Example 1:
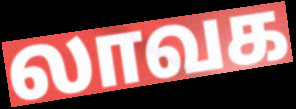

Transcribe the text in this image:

லாவக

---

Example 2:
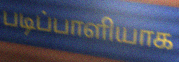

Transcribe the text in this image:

படிப்பாளியாக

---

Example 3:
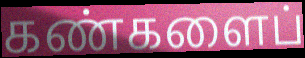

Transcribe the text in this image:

கண்களைப்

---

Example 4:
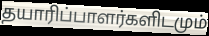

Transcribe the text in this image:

தயாரிப்பாளர்களிடமும்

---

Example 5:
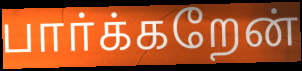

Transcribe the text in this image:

பார்க்கறேன்